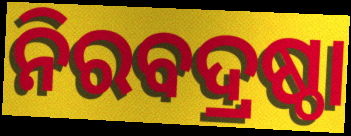
ନିରବଦ୍ରଷ୍ଠା